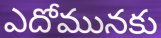
ఎదోమునకు